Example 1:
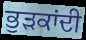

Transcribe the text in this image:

ਭੁੜਕਾਂਦੀ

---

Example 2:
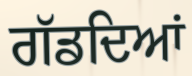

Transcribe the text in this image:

ਗੱਡਦਿਆਂ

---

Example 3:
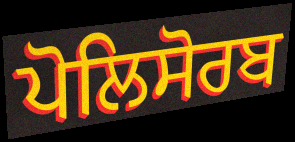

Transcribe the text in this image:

ਪੋਲਿਸੋਰਬ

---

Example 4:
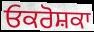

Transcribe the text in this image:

ਓਕਰੋਸ਼ਕਾ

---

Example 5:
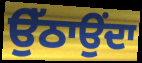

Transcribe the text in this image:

ਉੱਠਾਉਂਦਾ